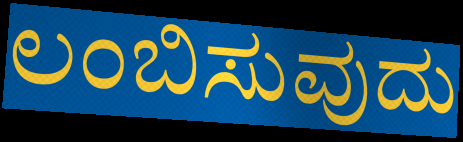
ಲಂಬಿಸುವುದು